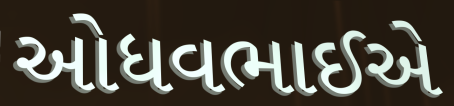
ઓધવભાઈએ